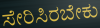
ಸೇರಿಸಿರಬೇಕು